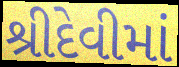
શ્રીદેવીમાં